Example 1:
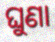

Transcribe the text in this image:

ଘୁଣା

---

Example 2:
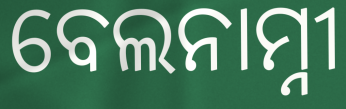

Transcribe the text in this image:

ବେଲନାମ୍ନୀ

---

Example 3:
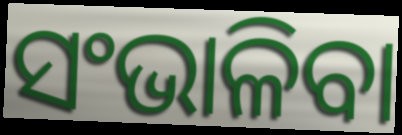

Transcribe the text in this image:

ସଂଭାଳିବା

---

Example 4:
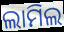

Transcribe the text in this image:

ଲାମିଲ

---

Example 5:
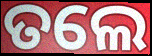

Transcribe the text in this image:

ତଲେ